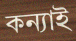
কন্যাই